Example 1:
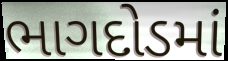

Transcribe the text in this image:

ભાગદોડમાં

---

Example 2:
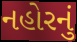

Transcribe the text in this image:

નહોરનું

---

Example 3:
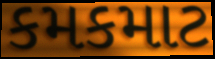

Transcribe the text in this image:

કમકમાટ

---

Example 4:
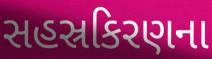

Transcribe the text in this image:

સહસ્રકિરણના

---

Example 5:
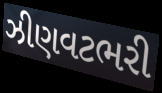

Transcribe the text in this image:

ઝીણવટભરી